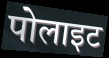
पोलाइट